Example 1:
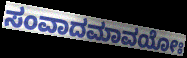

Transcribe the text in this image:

ಸಂವಾದಮಾವಯೋಃ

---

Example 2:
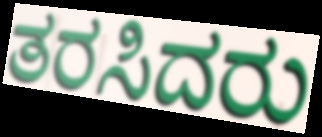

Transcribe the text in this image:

ತರಸಿದರು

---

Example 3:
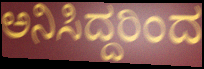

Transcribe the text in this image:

ಅನಿಸಿದ್ದರಿಂದ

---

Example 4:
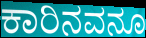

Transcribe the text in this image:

ಕಾರಿನವನೂ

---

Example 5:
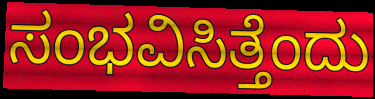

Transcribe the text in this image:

ಸಂಭವಿಸಿತ್ತೆಂದು